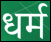
धर्म